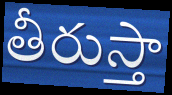
తీరుస్తా